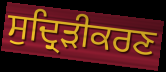
ਸੁਦ੍ਰਿੜੀਕਰਣ